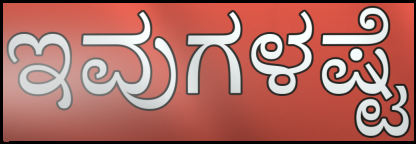
ಇವುಗಳಷ್ಟೆ